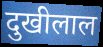
दुखीलाल